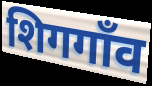
शिगगाँव